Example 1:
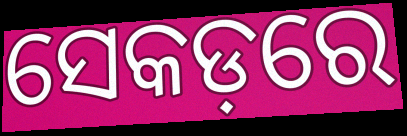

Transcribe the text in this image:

ସେକଡ଼ରେ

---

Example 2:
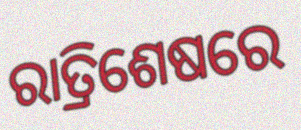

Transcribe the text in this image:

ରାତ୍ରିଶେଷରେ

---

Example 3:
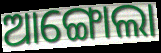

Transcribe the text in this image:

ଆଙ୍ଗୋଲା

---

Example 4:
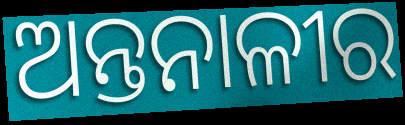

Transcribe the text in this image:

ଅନ୍ତନାଳୀର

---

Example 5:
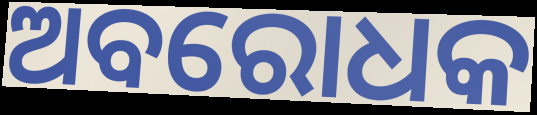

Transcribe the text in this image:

ଅବରୋଧକ